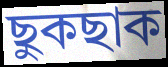
ছুকছাক